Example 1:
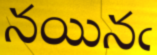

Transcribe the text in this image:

నయినఁ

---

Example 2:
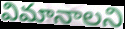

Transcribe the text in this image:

విమానాలని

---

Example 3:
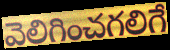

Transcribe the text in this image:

వెలిగించగలిగే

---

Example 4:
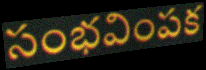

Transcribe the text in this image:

సంభవింపక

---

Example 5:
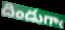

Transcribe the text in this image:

దిండుగాఁ